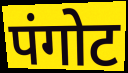
पंगोट